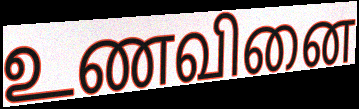
உணவினை